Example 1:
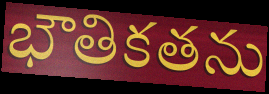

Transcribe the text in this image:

భౌతికతను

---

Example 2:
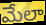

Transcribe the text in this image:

మేలా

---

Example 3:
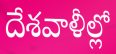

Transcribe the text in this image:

దేశవాళీల్లో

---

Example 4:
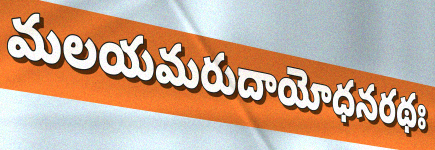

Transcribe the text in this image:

మలయమరుదాయోధనరథః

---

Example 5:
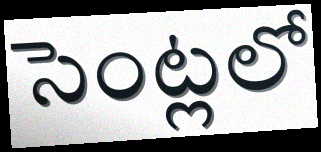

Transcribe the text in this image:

సెంట్లలో